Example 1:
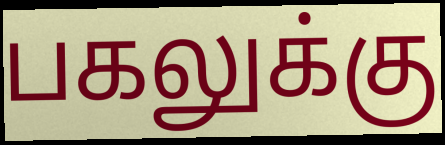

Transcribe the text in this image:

பகலுக்கு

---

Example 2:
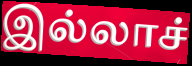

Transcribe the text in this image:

இல்லாச்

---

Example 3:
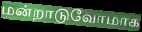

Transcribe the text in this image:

மன்றாடுவோமாக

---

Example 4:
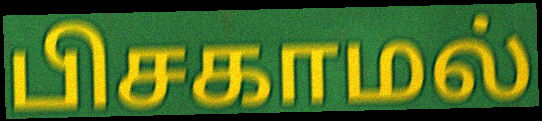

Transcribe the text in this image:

பிசகாமல்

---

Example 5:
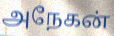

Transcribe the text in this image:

அநேகன்